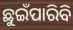
ଛୁଇଁପାରିବି